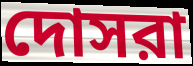
দোসরা